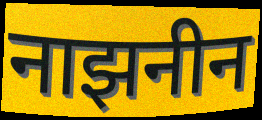
नाझनीन